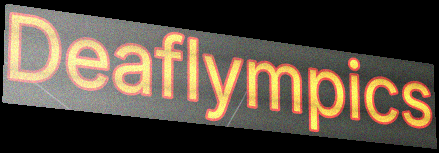
Deaflympics